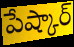
పేష్కార్